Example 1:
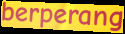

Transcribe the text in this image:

berperang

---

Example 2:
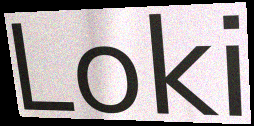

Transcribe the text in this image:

Loki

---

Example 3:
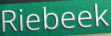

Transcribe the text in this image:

Riebeek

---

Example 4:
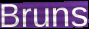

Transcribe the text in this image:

Bruns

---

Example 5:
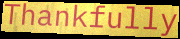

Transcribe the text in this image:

Thankfully